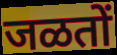
जळतों